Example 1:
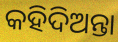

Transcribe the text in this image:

କହିଦିଅନ୍ତା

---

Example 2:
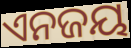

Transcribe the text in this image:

ଏନଜୟ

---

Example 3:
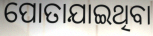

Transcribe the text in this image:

ପୋତାଯାଇଥିବା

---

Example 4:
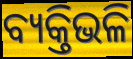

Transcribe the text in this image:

ବ୍ୟକ୍ତିଭଳି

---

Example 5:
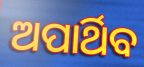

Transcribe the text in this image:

ଅପାର୍ଥିବ